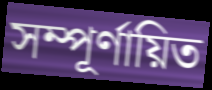
সম্পূর্ণায়িত